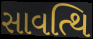
સાવત્થિ